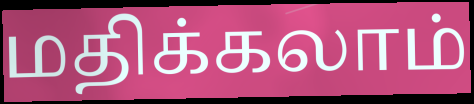
மதிக்கலாம்